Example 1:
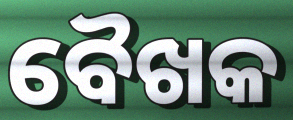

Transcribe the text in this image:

ବୈଖକ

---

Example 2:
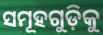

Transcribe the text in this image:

ସମୂହଗୁଡ଼ିକୁ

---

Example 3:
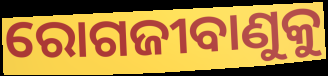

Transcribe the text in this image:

ରୋଗଜୀବାଣୁକୁ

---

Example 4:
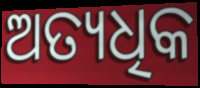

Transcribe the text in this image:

ଅତ୍ୟଧିକ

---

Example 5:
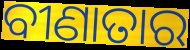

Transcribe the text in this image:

ବୀଣାତାର